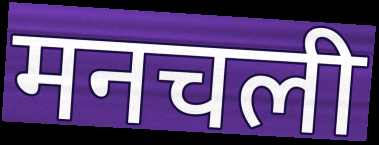
मनचली